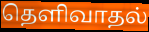
தெளிவாதல்